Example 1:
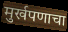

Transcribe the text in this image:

मुर्खपणाचा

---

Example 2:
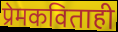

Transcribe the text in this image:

प्रेमकविताही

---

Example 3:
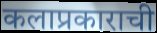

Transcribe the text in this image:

कलाप्रकाराची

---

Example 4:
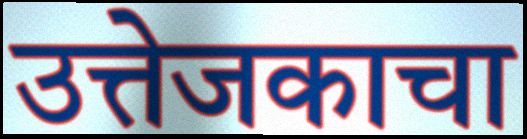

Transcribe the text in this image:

उत्तेजकाचा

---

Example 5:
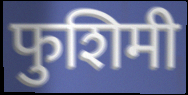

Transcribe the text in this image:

फुशिमी